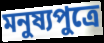
মনুষ্যপুত্রে